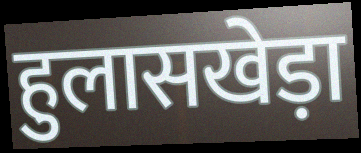
हुलासखेड़ा